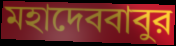
মহাদেববাবুর